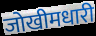
जोखीमधारी